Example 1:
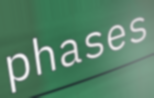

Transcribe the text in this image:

phases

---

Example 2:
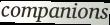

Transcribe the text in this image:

companions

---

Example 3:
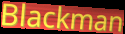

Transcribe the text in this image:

Blackman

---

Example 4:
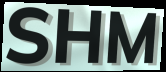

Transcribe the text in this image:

SHM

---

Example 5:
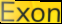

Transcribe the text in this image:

Exon